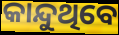
କାନ୍ଦୁଥିବେ